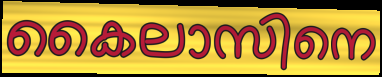
കൈലാസിനെ